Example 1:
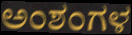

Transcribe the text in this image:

ಅಂಶಂಗಳ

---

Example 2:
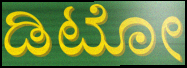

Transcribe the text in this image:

ಡಿಟೋ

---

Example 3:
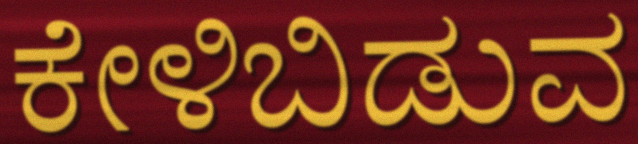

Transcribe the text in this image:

ಕೇಳಿಬಿಡುವ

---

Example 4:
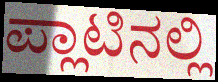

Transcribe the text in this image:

ಪ್ಲಾಟಿನಲ್ಲಿ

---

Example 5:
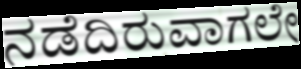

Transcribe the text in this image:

ನಡೆದಿರುವಾಗಲೇ